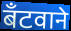
बँटवाने